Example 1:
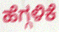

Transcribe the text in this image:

ಹೆಗ್ಗಳಿಕೆ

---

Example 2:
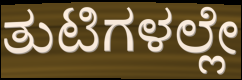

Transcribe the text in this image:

ತುಟಿಗಳಲ್ಲೇ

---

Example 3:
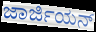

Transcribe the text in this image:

ಜಾರ್ಜಿಯನ್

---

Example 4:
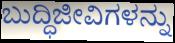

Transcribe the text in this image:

ಬುದ್ಧಿಜೀವಿಗಳನ್ನು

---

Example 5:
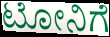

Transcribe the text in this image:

ಟೋನಿಗೆ